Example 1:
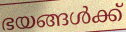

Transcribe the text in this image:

ഭയങ്ങൾക്ക്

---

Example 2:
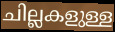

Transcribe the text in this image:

ചില്ലകളുള്ള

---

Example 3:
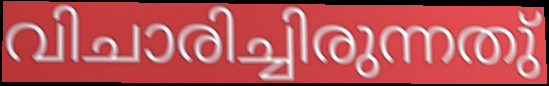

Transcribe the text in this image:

വിചാരിച്ചിരുന്നതു്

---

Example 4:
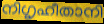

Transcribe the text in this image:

നിഗൃഹീതാനി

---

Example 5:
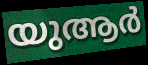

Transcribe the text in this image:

യുആർ